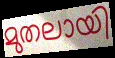
മുതലായി